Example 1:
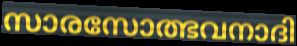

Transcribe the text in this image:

സാരസോത്ഭവനാദി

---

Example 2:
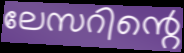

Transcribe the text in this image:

ലേസറിന്റെ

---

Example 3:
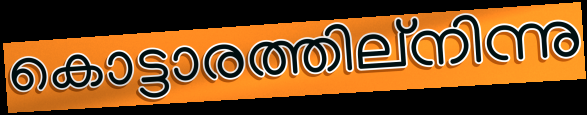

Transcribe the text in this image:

കൊട്ടാരത്തില്നിന്നു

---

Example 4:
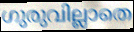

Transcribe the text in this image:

ഗുരുവില്ലാതെ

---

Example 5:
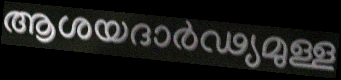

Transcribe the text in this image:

ആശയദാർഢ്യമുള്ള